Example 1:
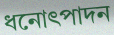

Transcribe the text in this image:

ধনোৎপাদন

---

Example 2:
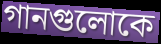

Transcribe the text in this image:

গানগুলোকে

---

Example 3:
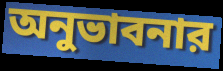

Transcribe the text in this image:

অনুভাবনার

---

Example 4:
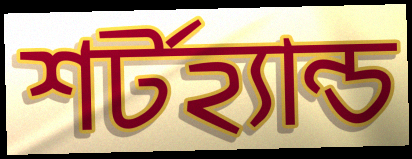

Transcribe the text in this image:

শর্টহ্যান্ড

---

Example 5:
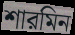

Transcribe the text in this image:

শারমিন